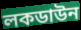
লকডাউন